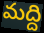
మద్ది